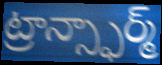
ట్రాన్స్ఫార్మ్